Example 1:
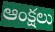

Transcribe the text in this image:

ఆంక్షలు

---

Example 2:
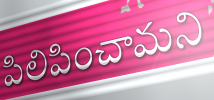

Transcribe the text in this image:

పిలిపించామని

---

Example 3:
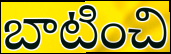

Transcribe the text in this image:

బాటించి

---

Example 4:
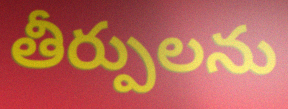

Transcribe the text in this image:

తీర్పులను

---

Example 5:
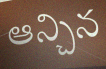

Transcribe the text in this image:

ఆన్చిన